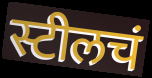
स्टीलचं